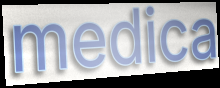
medica